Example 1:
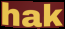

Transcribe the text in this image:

hak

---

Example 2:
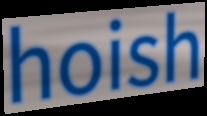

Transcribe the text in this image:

hoish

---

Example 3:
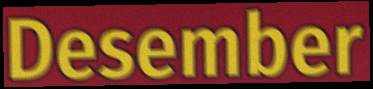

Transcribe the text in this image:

Desember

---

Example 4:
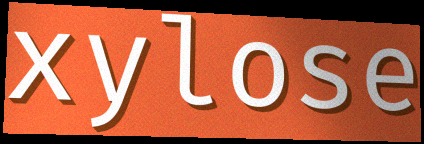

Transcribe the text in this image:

xylose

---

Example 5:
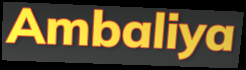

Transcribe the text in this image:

Ambaliya